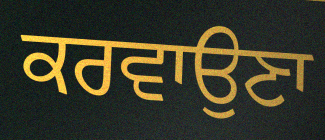
ਕਰਵਾਉਣਾ